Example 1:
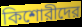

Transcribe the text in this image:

কিশোরীদের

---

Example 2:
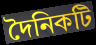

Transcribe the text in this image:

দৈনিকটি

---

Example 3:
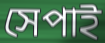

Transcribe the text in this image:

সেপাই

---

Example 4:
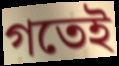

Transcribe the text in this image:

গতেই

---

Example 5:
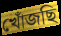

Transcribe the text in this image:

খোঁজছি